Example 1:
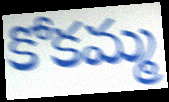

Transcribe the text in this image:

కోకమ్మ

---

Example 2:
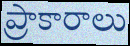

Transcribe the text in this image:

ప్రాకారాలు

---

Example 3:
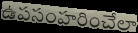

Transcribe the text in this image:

ఉపసంహరించేలా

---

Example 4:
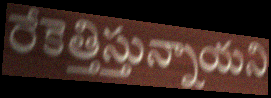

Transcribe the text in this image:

రేకెత్తిస్తున్నాయని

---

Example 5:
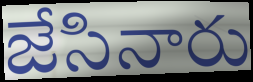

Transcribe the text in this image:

జేసినారు